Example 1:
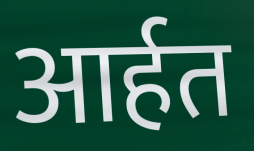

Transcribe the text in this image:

आर्हत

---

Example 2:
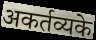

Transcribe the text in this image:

अकर्तव्यके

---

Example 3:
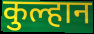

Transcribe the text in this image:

कुल्हान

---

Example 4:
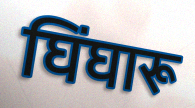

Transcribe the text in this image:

घिंघारू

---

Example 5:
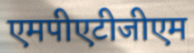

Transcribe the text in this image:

एमपीएटीजीएम